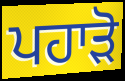
ਪਹਾੜੋ